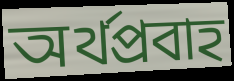
অর্থপ্রবাহ